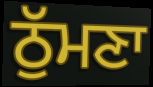
ਠੁੱਮਣਾ